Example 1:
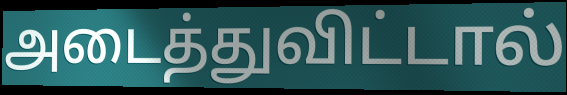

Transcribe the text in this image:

அடைத்துவிட்டால்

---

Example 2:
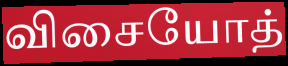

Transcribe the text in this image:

விசையோத்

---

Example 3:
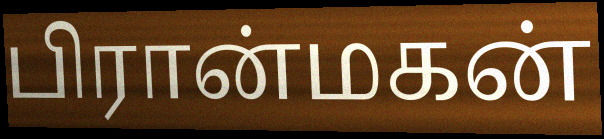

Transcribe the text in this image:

பிரான்மகன்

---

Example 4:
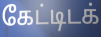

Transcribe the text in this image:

கேட்டிடக்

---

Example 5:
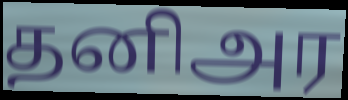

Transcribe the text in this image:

தனிஅர